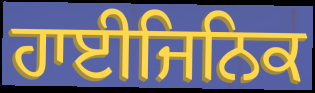
ਹਾਈਜਿਨਿਕ